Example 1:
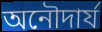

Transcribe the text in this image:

অনৌদার্য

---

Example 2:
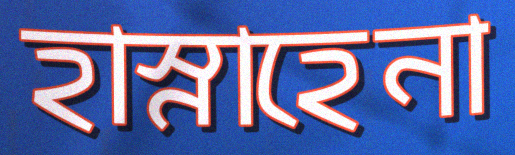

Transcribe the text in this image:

হাস্নাহেনা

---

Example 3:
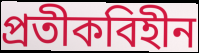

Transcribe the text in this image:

প্রতীকবিহীন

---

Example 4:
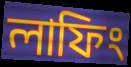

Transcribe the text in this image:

লাফিং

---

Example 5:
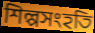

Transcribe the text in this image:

শিল্পসংহতি